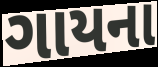
ગાયના